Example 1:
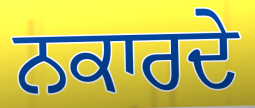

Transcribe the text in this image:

ਨਕਾਰਦੇ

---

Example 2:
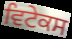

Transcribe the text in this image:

ਵਿਟੇਕਸ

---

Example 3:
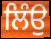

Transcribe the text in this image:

ਲਿੰਉ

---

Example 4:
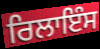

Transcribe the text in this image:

ਰਿਲਾਇੰਸ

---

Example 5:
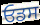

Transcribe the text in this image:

ਓਡਸ